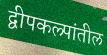
द्वीपकल्पांतील